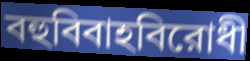
বহুবিবাহবিরোধী